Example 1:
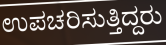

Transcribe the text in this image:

ಉಪಚರಿಸುತ್ತಿದ್ದರು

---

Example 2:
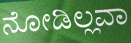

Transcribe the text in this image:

ನೋಡಿಲ್ಲವಾ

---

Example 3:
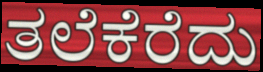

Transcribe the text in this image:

ತಲೆಕೆರೆದು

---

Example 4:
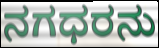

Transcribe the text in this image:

ನಗಧರನು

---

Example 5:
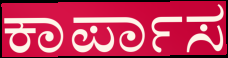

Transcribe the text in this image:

ಕಾರ್ಪಾಸ